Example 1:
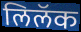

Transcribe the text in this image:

लिलॅक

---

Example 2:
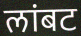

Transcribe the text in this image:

लांबट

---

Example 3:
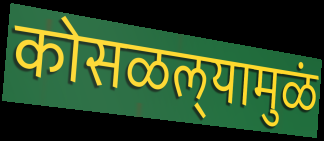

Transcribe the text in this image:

कोसळल्यामुळं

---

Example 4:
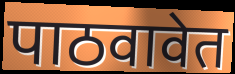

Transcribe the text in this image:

पाठवावेत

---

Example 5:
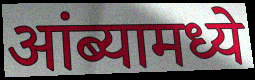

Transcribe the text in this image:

आंब्यामध्ये